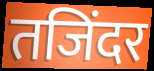
तजिंदर